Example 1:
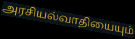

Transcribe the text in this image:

அரசியல்வாதியையும்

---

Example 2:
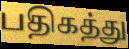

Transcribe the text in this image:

பதிகத்து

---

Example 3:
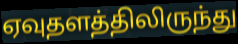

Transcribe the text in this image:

ஏவுதளத்திலிருந்து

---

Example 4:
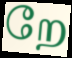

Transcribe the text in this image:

றே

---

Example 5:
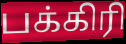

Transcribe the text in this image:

பக்கிரி